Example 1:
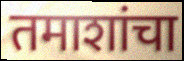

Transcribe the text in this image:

तमाशांचा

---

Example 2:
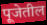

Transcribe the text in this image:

पूजेतील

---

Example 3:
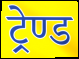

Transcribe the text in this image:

ट्रेण्ड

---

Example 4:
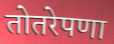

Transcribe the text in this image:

तोतरेपणा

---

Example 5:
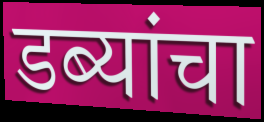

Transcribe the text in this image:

डब्यांचा